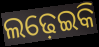
ଲଢ଼େଇକି